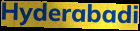
Hyderabadi